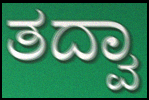
ತದ್ವಾ